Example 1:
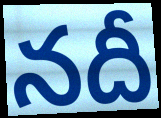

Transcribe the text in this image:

నదీ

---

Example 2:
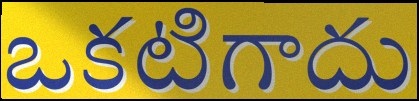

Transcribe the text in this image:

ఒకటిగాదు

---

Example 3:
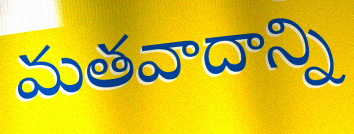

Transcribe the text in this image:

మతవాదాన్ని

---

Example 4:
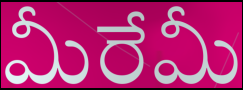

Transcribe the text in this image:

మీరేమీ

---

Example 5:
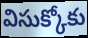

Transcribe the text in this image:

విసుక్కోకు